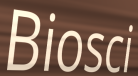
Biosci